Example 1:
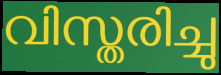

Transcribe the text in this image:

വിസ്തരിച്ചു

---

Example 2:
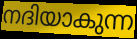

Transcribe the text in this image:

നദിയാകുന്ന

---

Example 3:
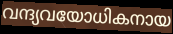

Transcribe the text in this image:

വന്ദ്യവയോധികനായ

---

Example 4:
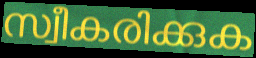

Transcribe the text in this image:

സ്വീകരിക്കുക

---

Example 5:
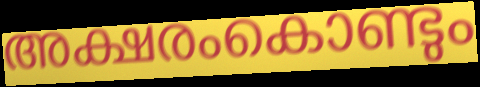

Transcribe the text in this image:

അക്ഷരംകൊണ്ടും